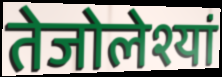
तेजोलेश्यां